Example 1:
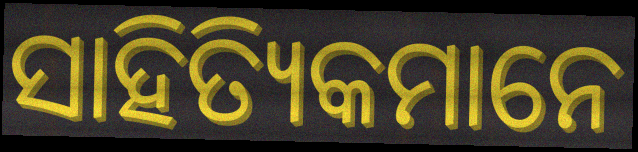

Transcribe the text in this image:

ସାହିତ୍ୟିକମାନେ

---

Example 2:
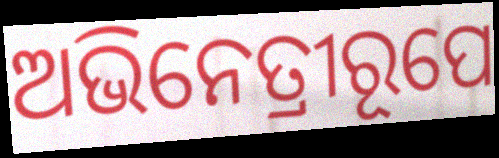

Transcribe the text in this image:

ଅଭିନେତ୍ରୀରୂପେ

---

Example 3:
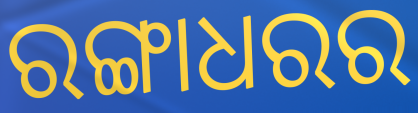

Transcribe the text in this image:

ରଙ୍ଗାଧରର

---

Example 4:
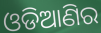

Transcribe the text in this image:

ଓଡିଆଣିର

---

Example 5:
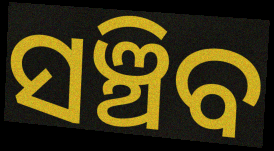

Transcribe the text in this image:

ସଞ୍ଚିବ